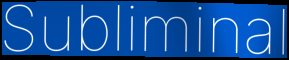
Subliminal